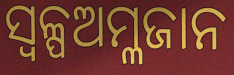
ସ୍ୱଳ୍ପଅମ୍ଳଜାନ